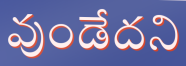
వుండేదని